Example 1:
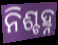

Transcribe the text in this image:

ନିଶ୍ଚହ୍ନ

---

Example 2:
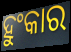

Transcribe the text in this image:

ହୁଂକାର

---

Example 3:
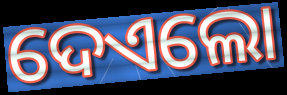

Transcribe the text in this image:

ଦେଏଲୋ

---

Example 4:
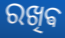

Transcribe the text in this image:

ରଖିଵ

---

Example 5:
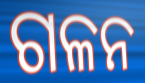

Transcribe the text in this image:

ଗଳନ